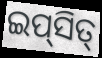
ଇପ୍‌ସିତ୍